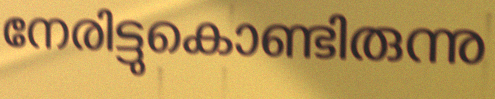
നേരിട്ടുകൊണ്ടിരുന്നു